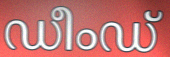
ഡീംഡ്